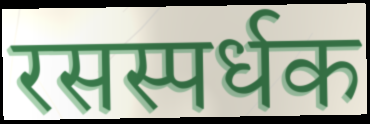
रसस्पर्धक